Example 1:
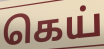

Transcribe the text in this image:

கெய்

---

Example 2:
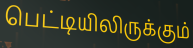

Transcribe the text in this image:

பெட்டியிலிருக்கும்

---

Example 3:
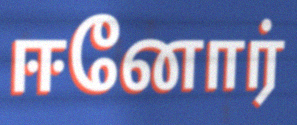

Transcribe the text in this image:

ஈனோர்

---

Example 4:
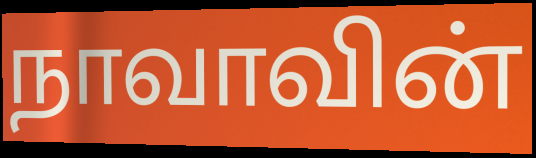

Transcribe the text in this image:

நாவாவின்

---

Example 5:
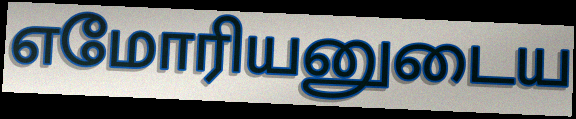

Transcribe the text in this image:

எமோரியனுடைய